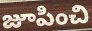
జూపించి